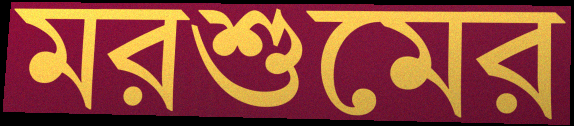
মরশুমের